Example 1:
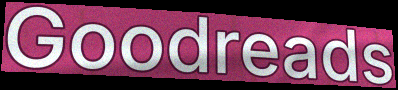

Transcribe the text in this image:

Goodreads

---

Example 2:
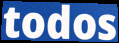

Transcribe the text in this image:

todos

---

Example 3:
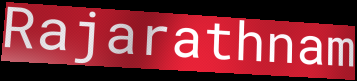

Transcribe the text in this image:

Rajarathnam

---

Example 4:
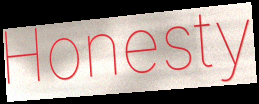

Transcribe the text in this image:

Honesty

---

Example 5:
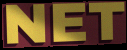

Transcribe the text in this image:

NET